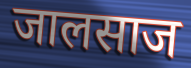
जालसाज